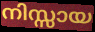
നിസ്സായ